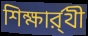
শিক্ষার্র্থী